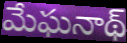
మేఘనాథ్